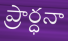
ప్రార్ధనా